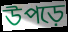
উপড়ে